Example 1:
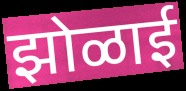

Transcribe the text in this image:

झोळाई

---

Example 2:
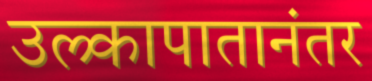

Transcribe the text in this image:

उल्कापातानंतर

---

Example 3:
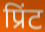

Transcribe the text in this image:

प्रिंट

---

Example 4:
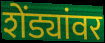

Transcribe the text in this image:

शेंड्यांवर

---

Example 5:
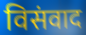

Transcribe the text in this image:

विसंवाद